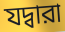
যদ্বারা